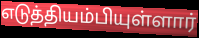
எடுத்தியம்பியுள்ளார்